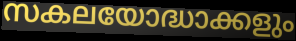
സകലയോദ്ധാക്കളും